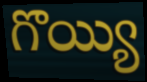
గొయ్యి